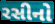
રસીનો